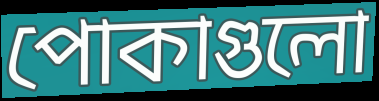
পোকাগুলো